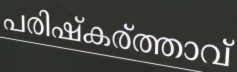
പരിഷ്കര്ത്താവ്